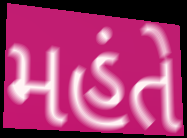
મહંતે